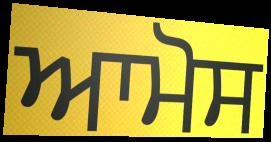
ਆਮੋਸ